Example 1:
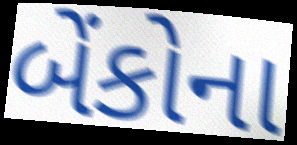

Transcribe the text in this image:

બેંકોના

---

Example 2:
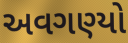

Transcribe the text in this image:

અવગણ્યો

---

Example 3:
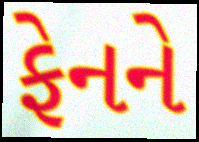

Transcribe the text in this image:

ફેનને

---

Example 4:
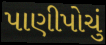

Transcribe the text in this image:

પાણીપોચું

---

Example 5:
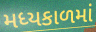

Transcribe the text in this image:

મધ્યકાળમાં